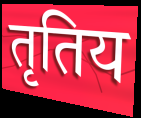
तृतिय